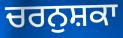
ਚਰਨੁਸ਼ਕਾ